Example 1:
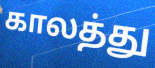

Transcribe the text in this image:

காலத்து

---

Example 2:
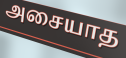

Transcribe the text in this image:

அசையாத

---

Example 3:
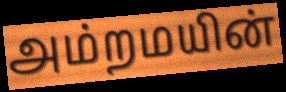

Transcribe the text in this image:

அம்றமயின்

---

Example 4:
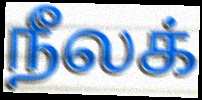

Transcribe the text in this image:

நீலக்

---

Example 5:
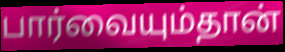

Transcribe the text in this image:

பார்வையும்தான்